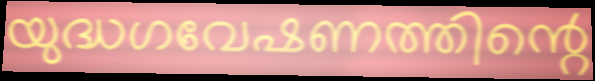
യുദ്ധഗവേഷണത്തിന്റെ